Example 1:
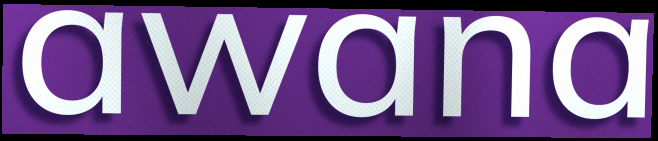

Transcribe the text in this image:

awana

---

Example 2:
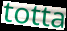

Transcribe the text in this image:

totta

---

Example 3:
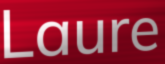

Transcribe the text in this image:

Laure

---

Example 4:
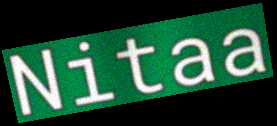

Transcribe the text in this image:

Nitaa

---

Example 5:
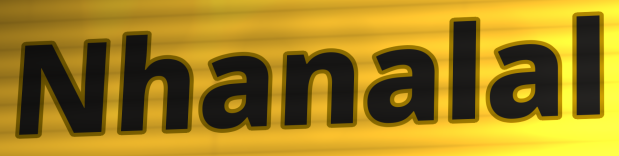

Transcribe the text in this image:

Nhanalal